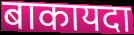
बाकायदा